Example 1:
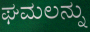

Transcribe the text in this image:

ಘಮಲನ್ನು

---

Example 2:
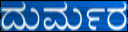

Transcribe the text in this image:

ದುರ್ಮರ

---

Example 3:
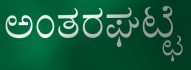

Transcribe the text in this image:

ಅಂತರಘಟ್ಟೆ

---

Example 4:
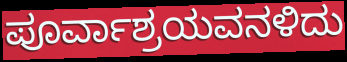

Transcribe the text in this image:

ಪೂರ್ವಾಶ್ರಯವನಳಿದು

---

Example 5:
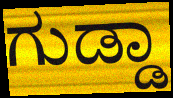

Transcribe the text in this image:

ಗುಡ್ಡಾ